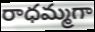
రాధమ్మగా